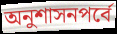
অনুশাসনপর্বে